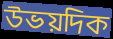
উভয়দিক